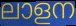
ലാളന